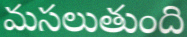
మసలుతుంది